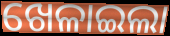
ଖେଳାଇଲା